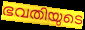
ഭവതിയുടെ